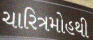
ચારિત્રમોહથી